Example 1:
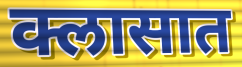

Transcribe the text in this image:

क्लासात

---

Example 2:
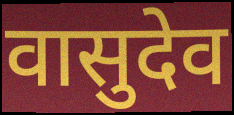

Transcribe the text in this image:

वासुदेव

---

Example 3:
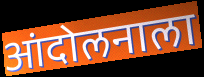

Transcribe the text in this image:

आंदोलनाला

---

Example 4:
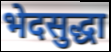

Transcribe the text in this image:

भेदसुद्धा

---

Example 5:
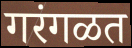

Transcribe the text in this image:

गरंगळत